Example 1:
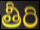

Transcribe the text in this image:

తీరి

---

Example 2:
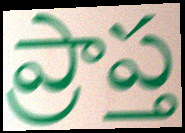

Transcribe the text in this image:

ప్రాప్త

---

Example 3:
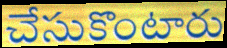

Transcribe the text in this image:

చేసుకొంటారు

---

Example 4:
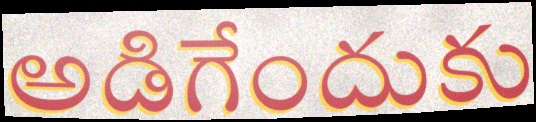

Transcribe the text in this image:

అడిగేందుకు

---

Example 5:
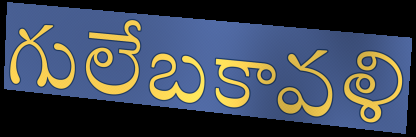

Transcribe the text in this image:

గులేబకావళి